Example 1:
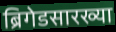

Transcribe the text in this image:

ब्रिगेडसारख्या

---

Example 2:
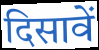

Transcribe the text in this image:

दिसावें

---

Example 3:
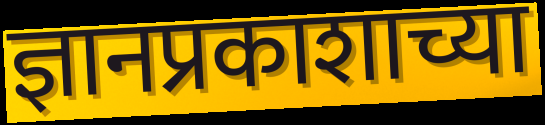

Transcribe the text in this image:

ज्ञानप्रकाशाच्या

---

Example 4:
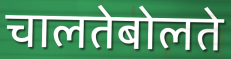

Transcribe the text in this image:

चालतेबोलते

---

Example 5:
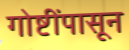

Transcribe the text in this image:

गोष्टींपासून